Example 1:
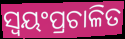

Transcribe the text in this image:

ସ୍ୱୟଂପ୍ରଚାଳିତ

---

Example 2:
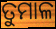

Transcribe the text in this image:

ତୁମାଳ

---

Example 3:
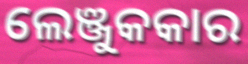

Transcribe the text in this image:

ଲେଞ୍ଜୁକକାର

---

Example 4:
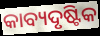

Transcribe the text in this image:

କାବ୍ୟଦୃଷ୍ଟିକ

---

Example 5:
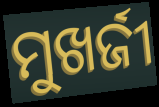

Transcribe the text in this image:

ମୁଖର୍ଜୀ